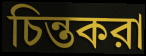
চিন্তকরা